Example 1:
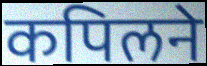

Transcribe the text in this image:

कपिलने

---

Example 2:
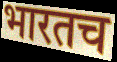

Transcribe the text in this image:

भारतच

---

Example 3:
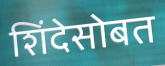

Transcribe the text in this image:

शिंदेसोबत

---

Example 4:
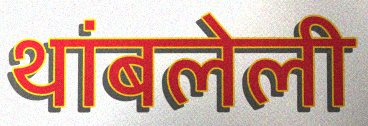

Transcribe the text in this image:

थांबलेली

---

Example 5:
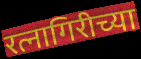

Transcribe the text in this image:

रत्नागिरीच्या